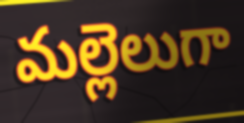
మల్లెలుగా